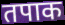
तपाक